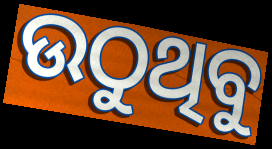
ଉଠୁଥିବୁ